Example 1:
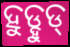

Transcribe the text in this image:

ହୁଡ୍ହୁଡ୍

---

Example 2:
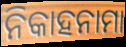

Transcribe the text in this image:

ନିକାହନାମା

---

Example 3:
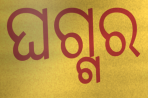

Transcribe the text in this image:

ଘଗ୍ଗର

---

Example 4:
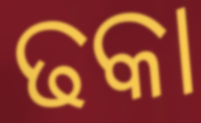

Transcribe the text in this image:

ଢକା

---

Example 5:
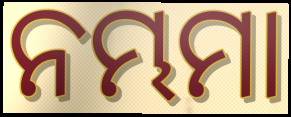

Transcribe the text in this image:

ନମ୍ଭମା